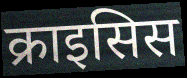
क्राइसिस